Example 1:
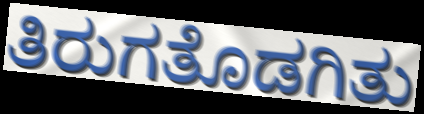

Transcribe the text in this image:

ತಿರುಗತೊಡಗಿತು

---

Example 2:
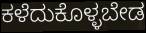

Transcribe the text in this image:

ಕಳೆದುಕೊಳ್ಳಬೇಡ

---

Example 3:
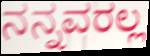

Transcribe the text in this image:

ನನ್ನವರಲ್ಲ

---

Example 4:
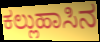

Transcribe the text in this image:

ಕಲ್ಲುಹಾಸಿನ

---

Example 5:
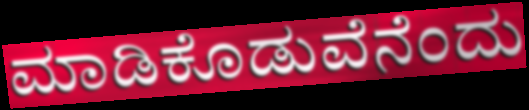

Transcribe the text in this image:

ಮಾಡಿಕೊಡುವೆನೆಂದು